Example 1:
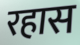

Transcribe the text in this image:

रहास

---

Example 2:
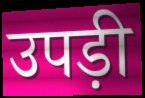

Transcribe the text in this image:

उपड़ी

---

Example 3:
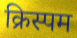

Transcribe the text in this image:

क्रिस्पम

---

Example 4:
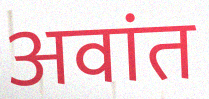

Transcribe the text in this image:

अवांत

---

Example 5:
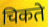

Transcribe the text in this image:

चिकते